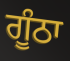
ਗੂੰਠਾ